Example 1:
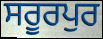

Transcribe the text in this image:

ਸਰੂਰਪੁਰ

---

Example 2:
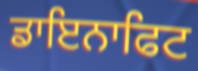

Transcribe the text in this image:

ਡਾਇਨਾਫਿਟ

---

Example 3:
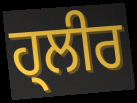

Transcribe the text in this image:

ਹ੍ਲੀਰ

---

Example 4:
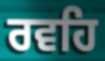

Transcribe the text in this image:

ਰਵਹਿ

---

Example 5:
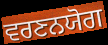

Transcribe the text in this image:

ਵਰਣਨਯੋਗ